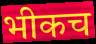
भीकच